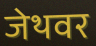
जेथवर